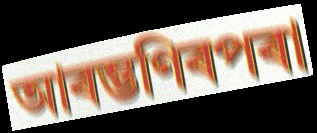
আৰম্ভণিৰপৰা